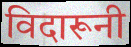
विदारूनी